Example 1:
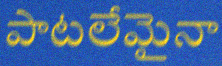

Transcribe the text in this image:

పాటలేమైనా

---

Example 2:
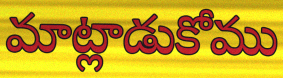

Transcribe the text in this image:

మాట్లాడుకోము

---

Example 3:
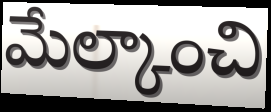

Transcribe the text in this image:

మేల్కాంచి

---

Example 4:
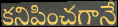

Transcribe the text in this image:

కనిపించగానే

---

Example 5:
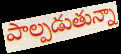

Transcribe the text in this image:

పాల్పడుతున్నా